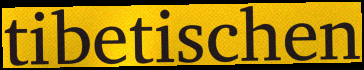
tibetischen